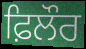
ਫ਼ਿਲੌਰ